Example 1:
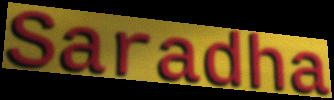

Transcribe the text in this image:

Saradha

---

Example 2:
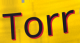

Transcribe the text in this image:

Torr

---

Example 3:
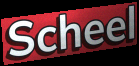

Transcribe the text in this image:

Scheel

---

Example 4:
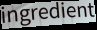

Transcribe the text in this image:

ingredient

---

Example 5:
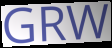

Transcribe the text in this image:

GRW